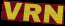
VRN